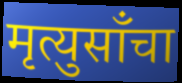
मृत्युसाँचा